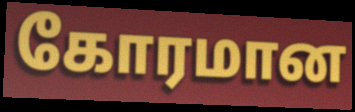
கோரமான